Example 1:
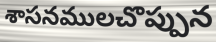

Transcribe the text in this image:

శాసనములచొప్పున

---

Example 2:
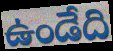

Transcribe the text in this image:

ఉండేది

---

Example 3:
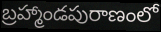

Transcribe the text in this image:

బ్రహ్మాండపురాణంలో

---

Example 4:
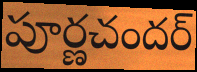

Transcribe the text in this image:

పూర్ణచందర్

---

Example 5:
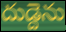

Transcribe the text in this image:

దుడ్దెను